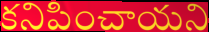
కనిపించాయని